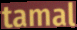
tamal